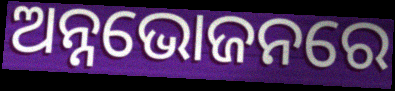
ଅନ୍ନଭୋଜନରେ